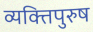
व्यक्तिपुरुष